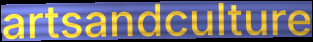
artsandculture